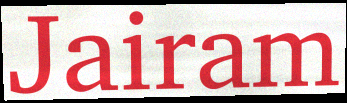
Jairam